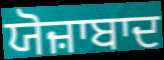
ਯੋਜ਼ਾਬਾਦ